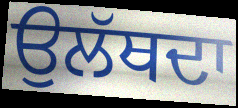
ਉਲੱਥਦਾ